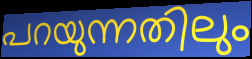
പറയുന്നതിലും